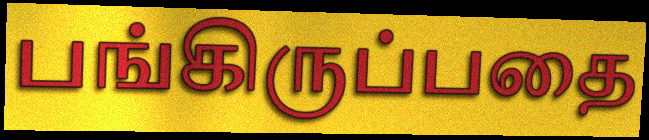
பங்கிருப்பதை